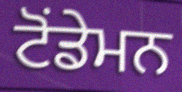
ਟੋਂਡੇਮਨ